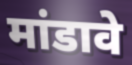
मांडावे